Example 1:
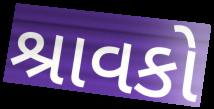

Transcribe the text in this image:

શ્રાવકો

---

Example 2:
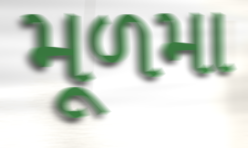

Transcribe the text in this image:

મૂળમા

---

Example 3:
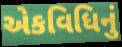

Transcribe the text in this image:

એકવિધિનું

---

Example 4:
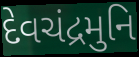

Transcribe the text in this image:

દેવચંદ્રમુનિ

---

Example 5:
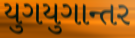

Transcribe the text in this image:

યુગયુગાન્તર